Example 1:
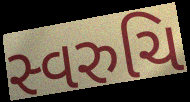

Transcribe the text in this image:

સ્વરુચિ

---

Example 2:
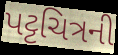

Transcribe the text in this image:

પટ્ટચિત્રની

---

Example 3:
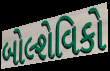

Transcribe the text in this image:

બોલ્શેવિકો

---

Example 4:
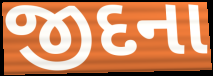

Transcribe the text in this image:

જીદના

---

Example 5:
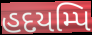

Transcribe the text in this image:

હદયમ્પિ